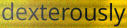
dexterously